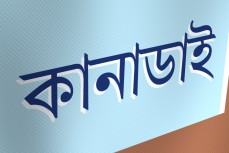
কানাডাই